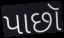
પાછૉ